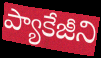
ప్యాకేజీని